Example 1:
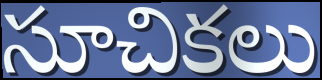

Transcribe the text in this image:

సూచికలు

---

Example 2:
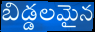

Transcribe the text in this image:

బిడ్డలమైన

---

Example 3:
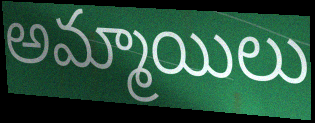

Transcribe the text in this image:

అమ్మాయిలు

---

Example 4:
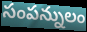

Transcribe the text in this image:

సంపన్నులం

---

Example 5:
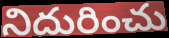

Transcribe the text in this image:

నిదురించు